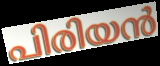
പിരിയൻ